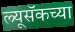
ल्यूसॅकच्या